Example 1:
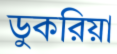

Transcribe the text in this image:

ডুকরিয়া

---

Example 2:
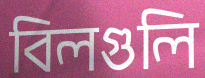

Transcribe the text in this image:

বিলগুলি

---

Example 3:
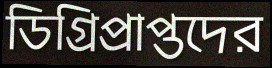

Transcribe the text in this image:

ডিগ্রিপ্রাপ্তদের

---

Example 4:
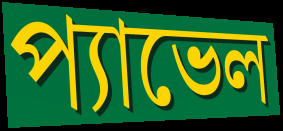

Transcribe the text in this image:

প্যাভেল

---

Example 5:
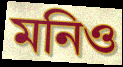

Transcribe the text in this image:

মনিও